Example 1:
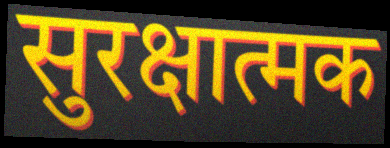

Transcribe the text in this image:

सुरक्षात्मक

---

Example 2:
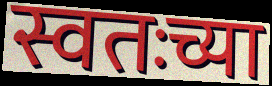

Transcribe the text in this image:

स्वतःच्या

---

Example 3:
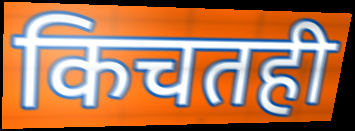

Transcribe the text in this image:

किचतही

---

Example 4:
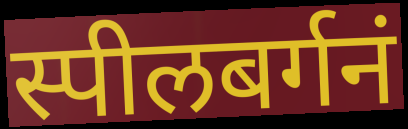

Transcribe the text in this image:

स्पीलबर्गनं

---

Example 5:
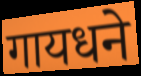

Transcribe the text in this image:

गायधने